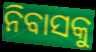
ନିବାସକୁ